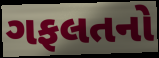
ગફલતનો